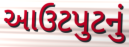
આઉટપુટનું